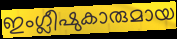
ഇംഗ്ലീഷുകാരുമായ